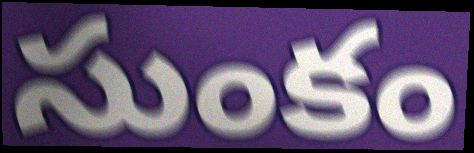
సుంకం